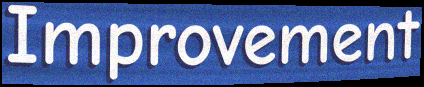
Improvement